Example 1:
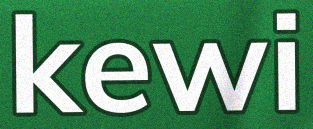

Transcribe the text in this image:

kewi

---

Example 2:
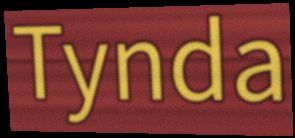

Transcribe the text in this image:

Tynda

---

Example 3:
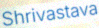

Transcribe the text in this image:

Shrivastava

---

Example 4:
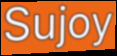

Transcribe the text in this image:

Sujoy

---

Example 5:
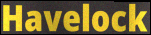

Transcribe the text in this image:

Havelock